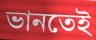
ভানতেই